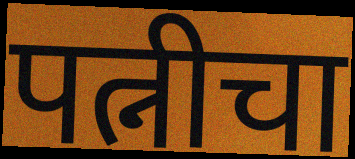
पत्नीचा